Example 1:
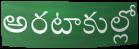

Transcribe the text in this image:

అరటాకుల్లో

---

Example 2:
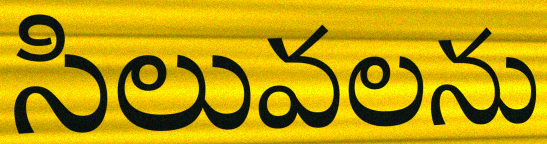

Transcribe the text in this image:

సిలువలను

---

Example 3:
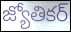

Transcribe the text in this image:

జ్యోతికర్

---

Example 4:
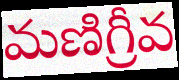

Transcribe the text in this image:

మణిగ్రీవ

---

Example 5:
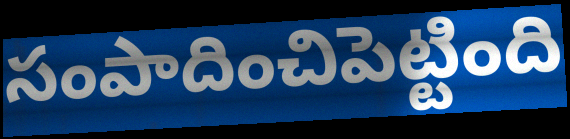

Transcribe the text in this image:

సంపాదించిపెట్టింది